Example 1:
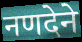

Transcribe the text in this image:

नणदेने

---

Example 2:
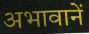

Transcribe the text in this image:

अभावानें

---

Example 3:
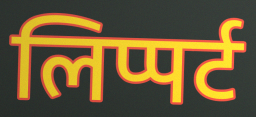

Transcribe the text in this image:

लिप्पर्ट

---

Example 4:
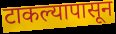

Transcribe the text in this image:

टाकल्यापासून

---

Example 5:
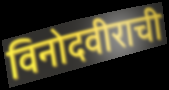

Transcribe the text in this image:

विनोदवीराची